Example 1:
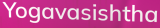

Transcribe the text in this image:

Yogavasishtha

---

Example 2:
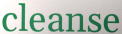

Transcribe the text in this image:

cleanse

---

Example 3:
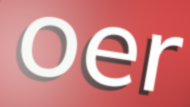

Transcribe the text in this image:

oer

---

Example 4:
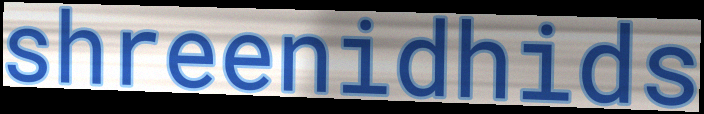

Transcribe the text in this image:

shreenidhids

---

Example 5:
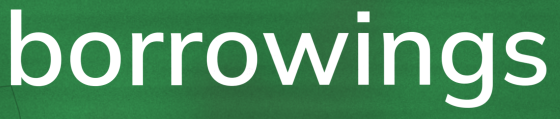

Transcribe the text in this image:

borrowings